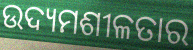
ଉଦ୍ୟମଶୀଳତାର